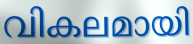
വികലമായി